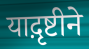
याद़ृष्टीने